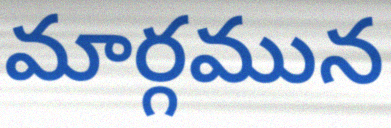
మార్గమున